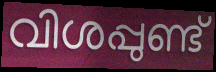
വിശപ്പുണ്ട്